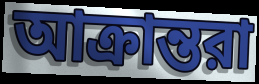
আক্রান্তরা